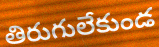
తిరుగులేకుండ